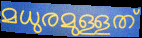
മധുരമുള്ളത്